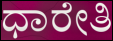
ಧಾರೇತಿ